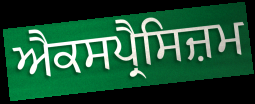
ਐਕਸਪ੍ਰੈਸਿਜ਼ਮ